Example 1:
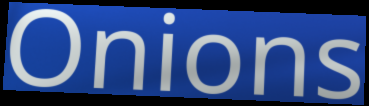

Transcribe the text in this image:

Onions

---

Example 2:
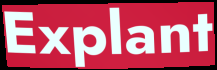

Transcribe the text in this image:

Explant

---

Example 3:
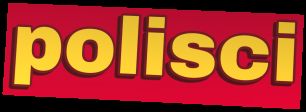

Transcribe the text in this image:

polisci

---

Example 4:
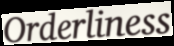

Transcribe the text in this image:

Orderliness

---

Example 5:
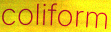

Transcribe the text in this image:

coliform